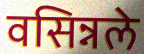
वसिन्नले